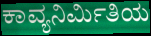
ಕಾವ್ಯನಿರ್ಮಿತಿಯ